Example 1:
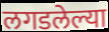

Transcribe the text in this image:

लगडलेल्या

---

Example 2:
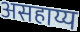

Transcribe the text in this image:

असहाय्य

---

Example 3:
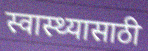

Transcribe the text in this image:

स्वास्थ्यासाठी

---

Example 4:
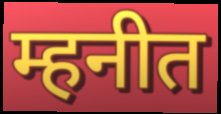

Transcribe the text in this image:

म्हनीत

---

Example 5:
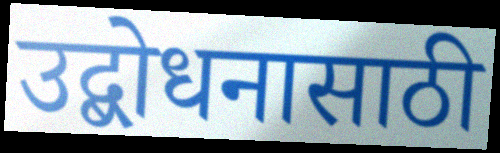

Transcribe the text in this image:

उद्बोधनासाठी